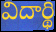
విదార్థి